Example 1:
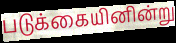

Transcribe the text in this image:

படுக்கையினின்று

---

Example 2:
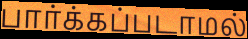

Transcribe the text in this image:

பார்க்கப்படாமல்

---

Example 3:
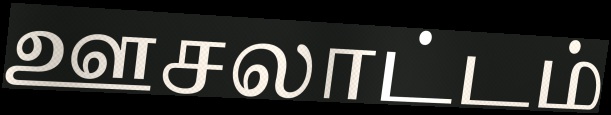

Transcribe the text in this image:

ஊசலாட்டம்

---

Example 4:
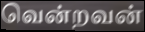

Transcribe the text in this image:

வென்றவன்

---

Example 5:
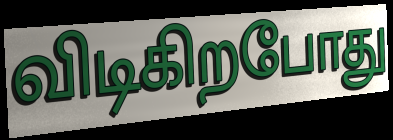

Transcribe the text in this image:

விடிகிறபோது